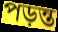
পড়ন্ত